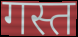
गस्त